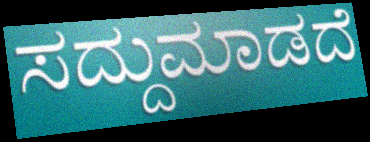
ಸದ್ದುಮಾಡದೆ